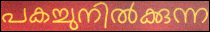
പകച്ചുനിൽക്കുന്ന